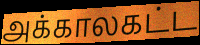
அக்காலகட்ட